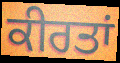
ਕੀਰਤਾਂ